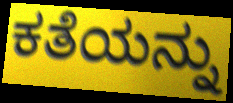
ಕತೆಯನ್ನು